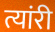
त्यांरी